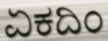
ಏಕದಿಂ